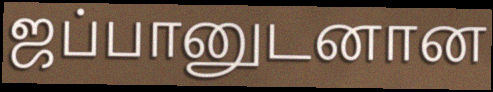
ஜப்பானுடனான